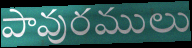
పావురములు